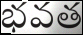
భవత